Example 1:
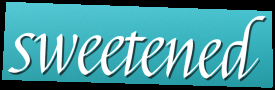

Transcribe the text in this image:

sweetened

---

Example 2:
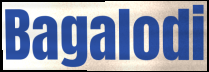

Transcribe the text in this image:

Bagalodi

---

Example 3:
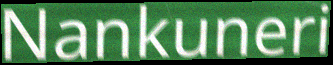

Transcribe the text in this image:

Nankuneri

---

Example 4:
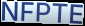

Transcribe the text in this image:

NFPTE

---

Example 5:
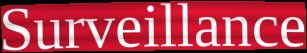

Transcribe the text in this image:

Surveillance